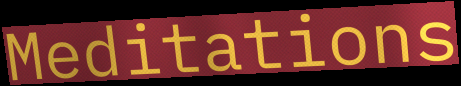
Meditations